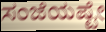
ಸಂಜೆಯಷ್ಟೇ